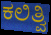
ಕಲಿತ್ವಿ